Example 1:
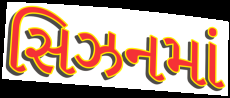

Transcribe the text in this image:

સિઝનમાં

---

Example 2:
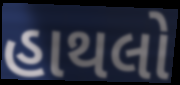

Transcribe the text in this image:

હાથલો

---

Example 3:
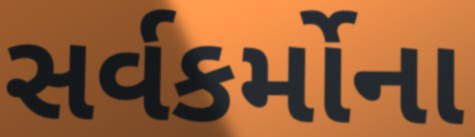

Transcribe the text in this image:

સર્વકર્મોના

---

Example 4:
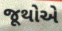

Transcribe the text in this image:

જૂથોએ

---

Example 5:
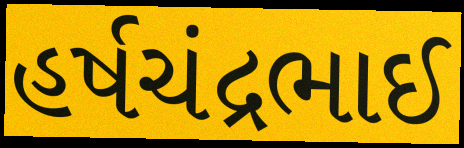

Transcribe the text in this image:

હર્ષચંદ્રભાઈ